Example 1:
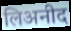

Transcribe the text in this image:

लिअनीद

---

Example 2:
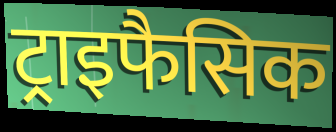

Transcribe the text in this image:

ट्राइफैसिक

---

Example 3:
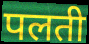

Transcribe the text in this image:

पलती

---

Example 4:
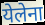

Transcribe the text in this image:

येलेना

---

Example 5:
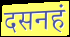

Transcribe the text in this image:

दसनहं